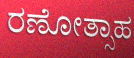
ರಣೋತ್ಸಾಹ